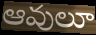
ఆవులూ